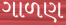
ગાળણ